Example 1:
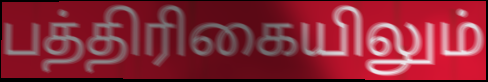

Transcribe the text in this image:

பத்திரிகையிலும்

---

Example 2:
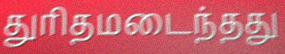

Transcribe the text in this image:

துரிதமடைந்தது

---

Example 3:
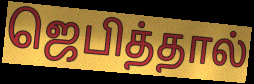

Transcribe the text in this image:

ஜெபித்தால்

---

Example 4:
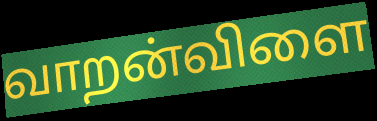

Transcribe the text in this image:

வாறன்விளை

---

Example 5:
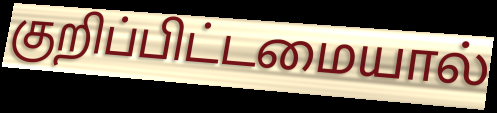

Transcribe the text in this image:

குறிப்பிட்டமையால்